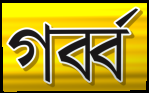
গর্ব্ব